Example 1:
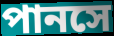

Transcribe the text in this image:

পানসে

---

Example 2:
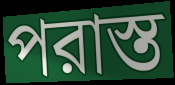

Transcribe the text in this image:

পরাস্ত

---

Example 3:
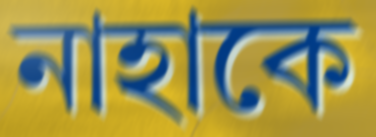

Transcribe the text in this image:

নাহাকে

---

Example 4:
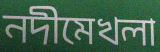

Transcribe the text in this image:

নদীমেখলা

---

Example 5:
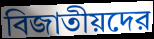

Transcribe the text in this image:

বিজাতীয়দের